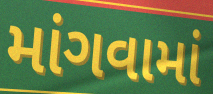
માંગવામાં